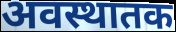
अवस्थातक